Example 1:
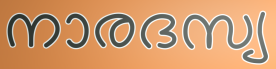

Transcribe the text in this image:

നാരദസ്യ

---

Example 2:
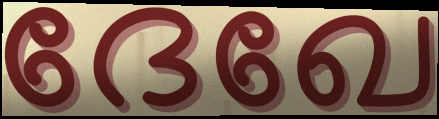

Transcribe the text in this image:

ദേഖേ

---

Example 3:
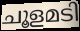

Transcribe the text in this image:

ചൂളമടി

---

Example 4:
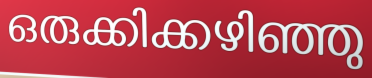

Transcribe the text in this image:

ഒരുക്കിക്കഴിഞ്ഞു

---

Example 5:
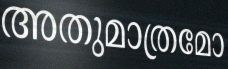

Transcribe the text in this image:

അതുമാത്രമോ